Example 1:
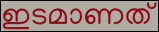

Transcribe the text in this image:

ഇടമാണത്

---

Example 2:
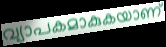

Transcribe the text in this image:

വ്യാപകമാകുകയാണ്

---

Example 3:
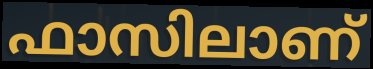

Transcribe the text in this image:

ഫാസിലാണ്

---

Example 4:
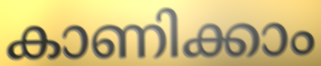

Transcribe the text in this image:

കാണിക്കാം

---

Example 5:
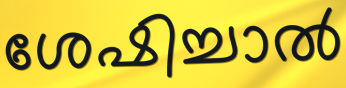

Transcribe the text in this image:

ശേഷിച്ചാൽ